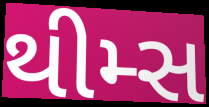
થીમ્સ